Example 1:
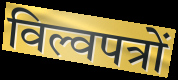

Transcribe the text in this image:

विल्वपत्रों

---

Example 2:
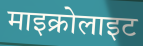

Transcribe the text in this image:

माइक्रोलाइट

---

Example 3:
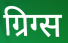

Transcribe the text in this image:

ग्रिग्स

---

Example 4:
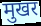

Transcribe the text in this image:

मुखर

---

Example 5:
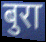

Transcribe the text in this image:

बुरा